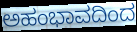
ಅಹಂಭಾವದಿಂದ